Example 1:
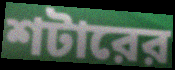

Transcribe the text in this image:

শটারের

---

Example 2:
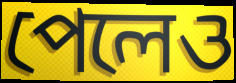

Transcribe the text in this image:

পেলেও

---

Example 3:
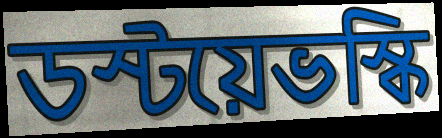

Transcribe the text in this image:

ডস্টয়েভস্কি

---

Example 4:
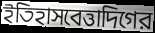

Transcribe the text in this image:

ইতিহাসবেত্তাদিগের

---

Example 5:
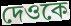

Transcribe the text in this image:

দেওকে